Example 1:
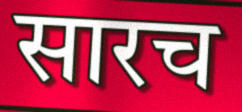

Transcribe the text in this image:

सारच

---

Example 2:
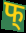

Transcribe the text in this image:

फ्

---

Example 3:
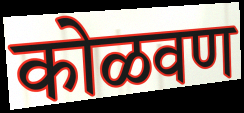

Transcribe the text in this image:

कोळवण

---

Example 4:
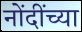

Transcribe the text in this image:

नोंदींच्या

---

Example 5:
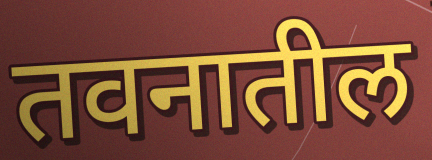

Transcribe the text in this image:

तवनातील